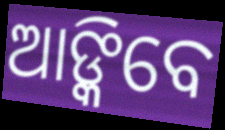
ଆଙ୍କିବେ